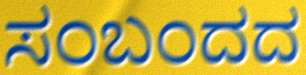
ಸಂಬಂದದ